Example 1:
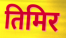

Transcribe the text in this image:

तिमिर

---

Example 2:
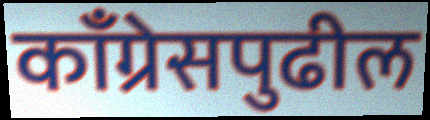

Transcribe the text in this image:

काँग्रेसपुढील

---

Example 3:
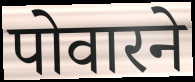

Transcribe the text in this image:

पोवारने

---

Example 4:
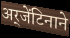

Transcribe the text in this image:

अर्जेंटिनाने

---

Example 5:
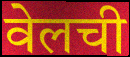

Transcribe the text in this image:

वेलची